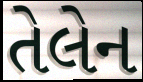
તેલેન